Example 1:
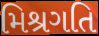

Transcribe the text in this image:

મિશ્રગતિ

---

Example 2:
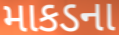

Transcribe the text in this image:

માકડના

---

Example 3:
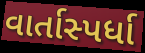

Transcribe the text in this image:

વાર્તાસ્પર્ધા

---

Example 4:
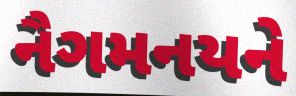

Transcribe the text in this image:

નૈગમનયને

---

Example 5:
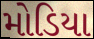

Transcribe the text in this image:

મોડિયા